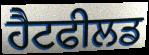
ਹੈਟਫੀਲਡ